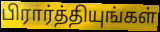
பிரார்த்தியுங்கள்